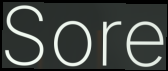
Sore